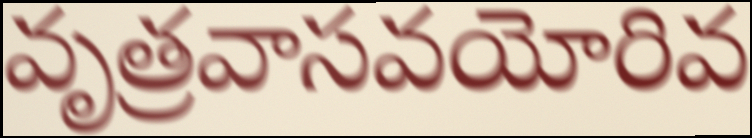
వృత్రవాసవయోరివ